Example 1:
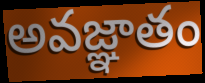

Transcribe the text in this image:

అవజ్ఞాతం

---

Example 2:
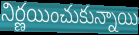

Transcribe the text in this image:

నిర్ణయించుకున్నాయి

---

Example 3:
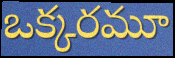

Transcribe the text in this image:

ఒక్కరమూ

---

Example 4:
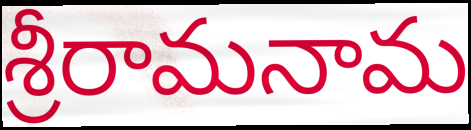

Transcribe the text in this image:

శ్రీరామనామ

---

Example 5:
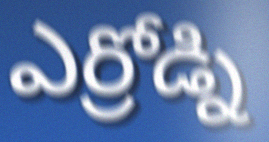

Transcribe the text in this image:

ఎర్రోడ్ని